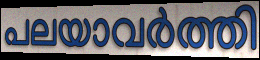
പലയാവർത്തി